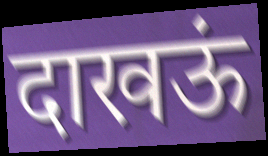
दाखऊं